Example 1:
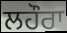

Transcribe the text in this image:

ਲਹੌਰਾ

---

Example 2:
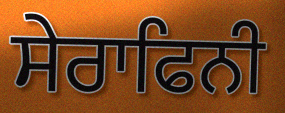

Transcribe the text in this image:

ਸੇਰਾਫਿਨੀ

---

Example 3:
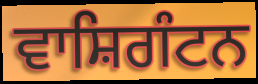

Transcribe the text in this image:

ਵਾਸ਼ਿਗੰਟਨ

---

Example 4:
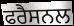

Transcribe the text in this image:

ਫਰੈਸਨਲ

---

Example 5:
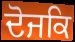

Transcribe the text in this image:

ਦੋਜਕਿ